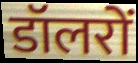
डॉलरों